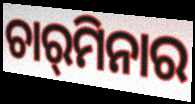
ଚାର୍‌ମିନାର